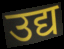
उद्य